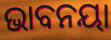
ଭାବନୟା